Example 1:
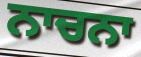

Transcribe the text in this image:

ਨਾਚਨਾ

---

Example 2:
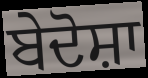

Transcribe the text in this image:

ਬੇਦੋਸ਼ਾ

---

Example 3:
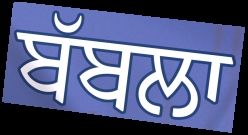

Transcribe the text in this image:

ਬੱਬਲਾ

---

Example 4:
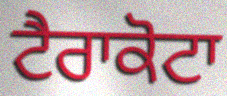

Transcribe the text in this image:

ਟੈਰਾਕੋਟਾ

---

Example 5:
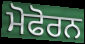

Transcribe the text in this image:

ਮੋਫੋਰਨ